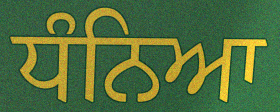
ਧੰਨਿਆ